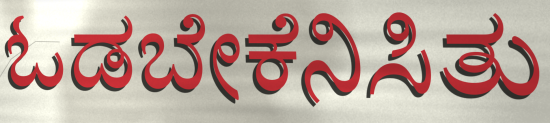
ಓಡಬೇಕೆನಿಸಿತು